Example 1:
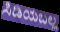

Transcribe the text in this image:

ಸಿಡಿಯಬಲ್ಲ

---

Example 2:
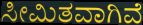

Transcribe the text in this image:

ಸೀಮಿತವಾಗಿವೆ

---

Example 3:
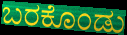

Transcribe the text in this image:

ಬರಕೊಂಡು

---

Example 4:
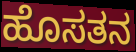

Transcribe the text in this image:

ಹೊಸತನ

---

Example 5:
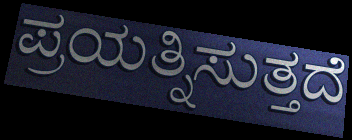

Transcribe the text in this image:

ಪ್ರಯತ್ನಿಸುತ್ತದೆ